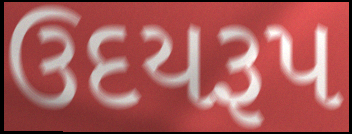
ઉદયરૂપ